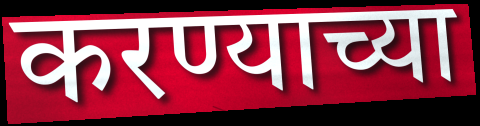
करण्याच्या